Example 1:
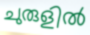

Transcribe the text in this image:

ചുരുളിൽ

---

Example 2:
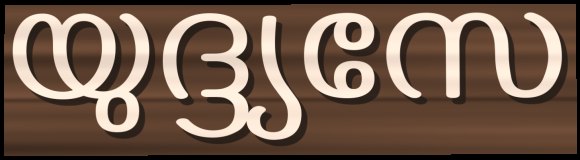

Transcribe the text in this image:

യുദ്ദ്യസേ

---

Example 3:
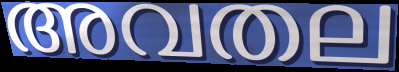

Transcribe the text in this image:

അവതല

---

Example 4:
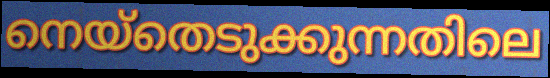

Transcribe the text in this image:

നെയ്തെടുക്കുന്നതിലെ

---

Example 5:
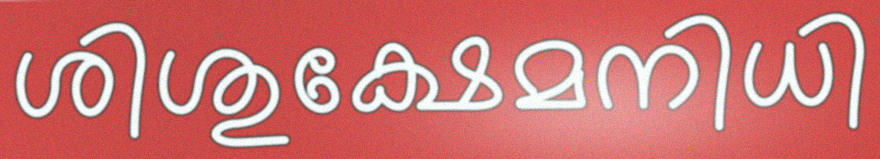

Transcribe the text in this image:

ശിശുക്ഷേമനിധി